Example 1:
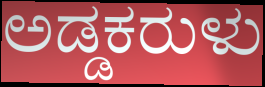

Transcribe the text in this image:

ಅಡ್ಡಕರುಳು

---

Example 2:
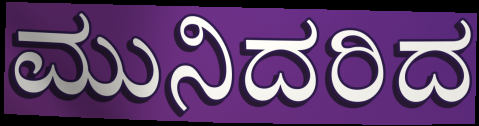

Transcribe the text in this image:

ಮುನಿದರಿದ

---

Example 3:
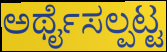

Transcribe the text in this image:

ಅರ್ಥೈಸಲ್ಪಟ್ಟ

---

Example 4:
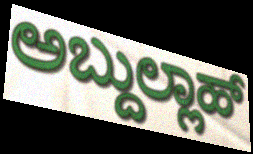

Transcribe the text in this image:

ಅಬ್ದುಲ್ಲಾಹ್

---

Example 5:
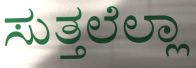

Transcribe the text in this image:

ಸುತ್ತಲೆಲ್ಲಾ